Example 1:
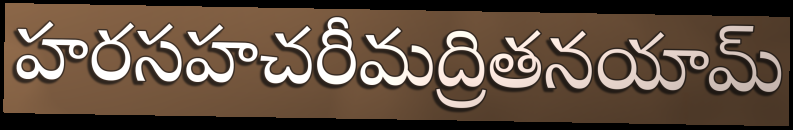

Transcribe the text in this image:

హరసహచరీమద్రితనయామ్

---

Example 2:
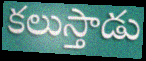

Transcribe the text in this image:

కలుస్తాడు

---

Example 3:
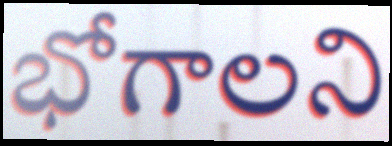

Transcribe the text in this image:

భోగాలని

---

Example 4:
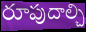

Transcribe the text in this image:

రూపుదాల్చి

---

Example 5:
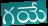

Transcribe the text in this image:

గయే